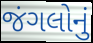
જંગલોનું